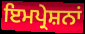
ਇਮਪ੍ਰੇਸ਼ਨਾਂ